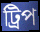
ট্রিপ